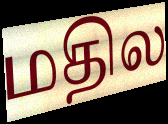
மதில